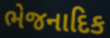
ભેજનાદિક